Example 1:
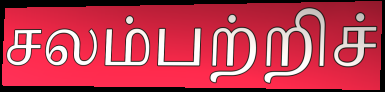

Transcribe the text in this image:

சலம்பற்றிச்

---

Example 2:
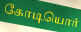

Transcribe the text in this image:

கோடியொர்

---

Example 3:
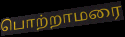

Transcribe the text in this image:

பொற்றாமரை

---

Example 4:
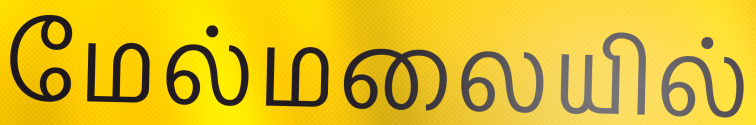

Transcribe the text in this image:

மேல்மலையில்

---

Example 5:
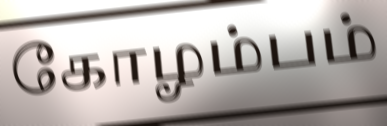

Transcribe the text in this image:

கோழம்பம்